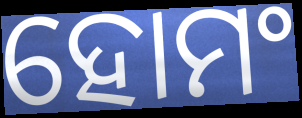
ହୋମଂ